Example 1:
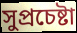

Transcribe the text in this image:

সুপ্রচেষ্টা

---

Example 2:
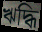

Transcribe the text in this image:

ঋদ্ধি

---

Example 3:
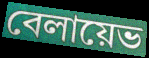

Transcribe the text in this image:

বেলায়েভ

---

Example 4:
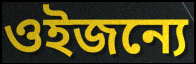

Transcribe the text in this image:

ওইজন্যে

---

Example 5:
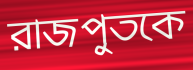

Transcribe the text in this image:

রাজপুতকে